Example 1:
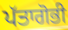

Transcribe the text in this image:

ਪੱਤਾਗੋਭੀ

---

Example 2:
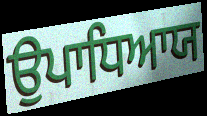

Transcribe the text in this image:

ਉਪਾਧਿਆਯ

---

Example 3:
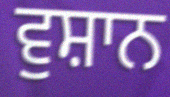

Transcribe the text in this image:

ਵੁਸ਼ਾਨ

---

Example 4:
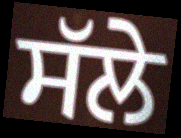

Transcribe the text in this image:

ਸੱਲੇ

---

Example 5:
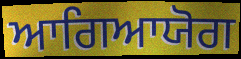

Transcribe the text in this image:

ਆਗਿਆਯੋਗ